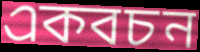
একবচন